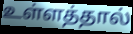
உள்ளத்தால்